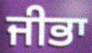
ਜੀਭਾ